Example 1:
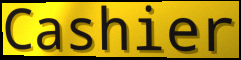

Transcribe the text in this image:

Cashier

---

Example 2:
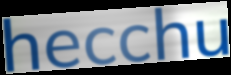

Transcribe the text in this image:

hecchu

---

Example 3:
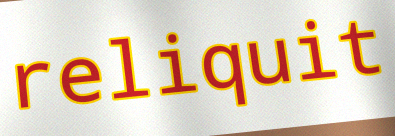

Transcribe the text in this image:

reliquit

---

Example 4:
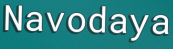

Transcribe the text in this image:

Navodaya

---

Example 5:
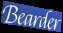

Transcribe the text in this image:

Bearder